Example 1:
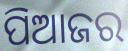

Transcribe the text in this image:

ପିଆଜର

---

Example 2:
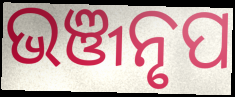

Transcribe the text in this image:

ଭଞ୍ଜନୃପ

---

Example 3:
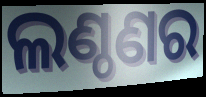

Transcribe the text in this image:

ଲଣ୍ଠଣର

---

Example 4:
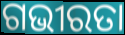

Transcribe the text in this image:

ଗଭୀରତା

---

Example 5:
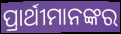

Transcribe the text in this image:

ପ୍ରାର୍ଥୀମାନଙ୍କର